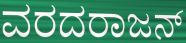
ವರದರಾಜನ್